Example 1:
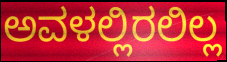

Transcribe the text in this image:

ಅವಳಲ್ಲಿರಲಿಲ್ಲ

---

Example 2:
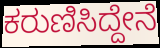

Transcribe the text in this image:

ಕರುಣಿಸಿದ್ದೇನೆ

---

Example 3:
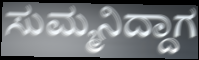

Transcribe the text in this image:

ಸುಮ್ಮನಿದ್ದಾಗ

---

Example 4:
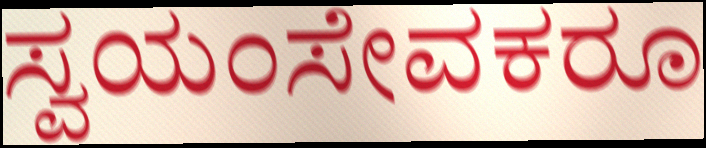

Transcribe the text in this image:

ಸ್ವಯಂಸೇವಕರೂ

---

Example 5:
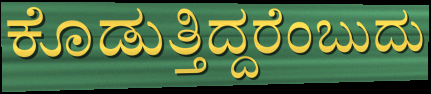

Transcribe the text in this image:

ಕೊಡುತ್ತಿದ್ದರೆಂಬುದು